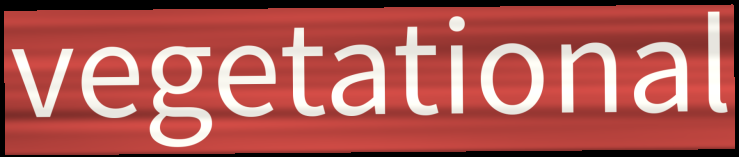
vegetational